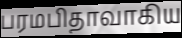
பரமபிதாவாகிய